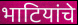
भाटियांचे